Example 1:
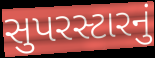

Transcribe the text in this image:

સુપરસ્ટારનું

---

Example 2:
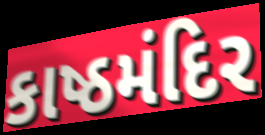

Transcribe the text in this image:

કાષ્ઠમંદિર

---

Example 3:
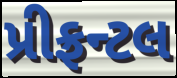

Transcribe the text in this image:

પ્રીફ્રન્ટલ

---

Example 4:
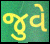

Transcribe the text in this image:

જુવે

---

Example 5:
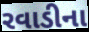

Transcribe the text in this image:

રવાડીના